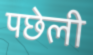
पछेली